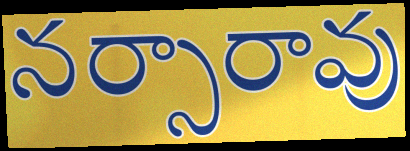
నర్సారావు